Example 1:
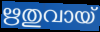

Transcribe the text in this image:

ഋതുവായ്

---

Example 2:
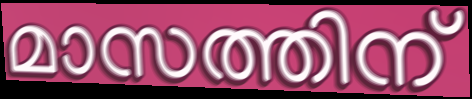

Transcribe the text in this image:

മാസത്തിന്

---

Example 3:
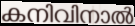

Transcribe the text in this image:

കനിവിനാൽ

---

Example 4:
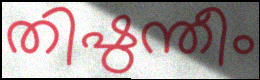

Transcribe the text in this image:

തിഷ്ഠന്തീം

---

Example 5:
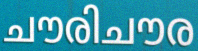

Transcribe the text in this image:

ചൗരിചൗര